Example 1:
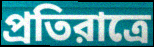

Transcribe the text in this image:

প্রতিরাত্রে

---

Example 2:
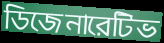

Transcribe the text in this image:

ডিজেনারেটিভ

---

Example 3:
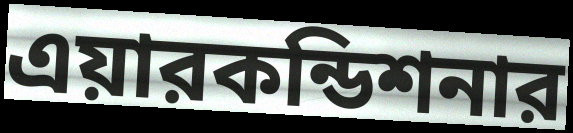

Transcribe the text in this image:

এয়ারকন্ডিশনার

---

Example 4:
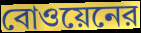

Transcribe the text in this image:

বোওয়েনের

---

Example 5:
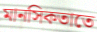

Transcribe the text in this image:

মানসিকতাতে